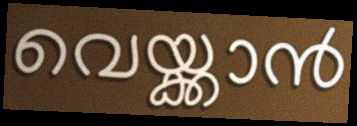
വെയ്ക്കാൻ